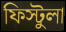
ফিস্টুলা